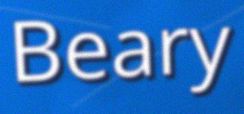
Beary